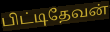
பிட்டிதேவன்